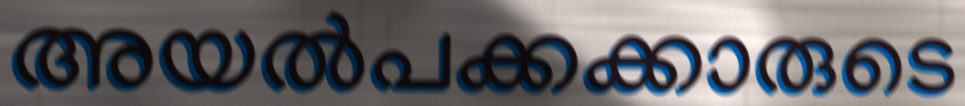
അയൽപക്കക്കാരുടെ